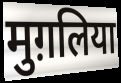
मुग़लिया